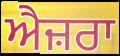
ਐਜ਼ਰਾ